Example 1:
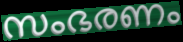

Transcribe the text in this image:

സംഭരണം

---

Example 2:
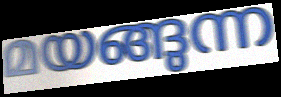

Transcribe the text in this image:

മയങ്ങുന്ന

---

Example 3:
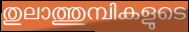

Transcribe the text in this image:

തുലാത്തുമ്പികളുടെ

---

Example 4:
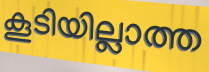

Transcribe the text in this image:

കൂടിയില്ലാത്ത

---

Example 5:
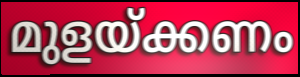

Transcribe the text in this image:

മുളയ്ക്കണം